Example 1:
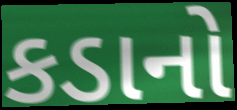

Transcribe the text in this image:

કડાનો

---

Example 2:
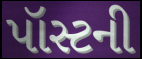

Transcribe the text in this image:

પૉસ્ટની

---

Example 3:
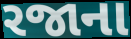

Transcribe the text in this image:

રજાના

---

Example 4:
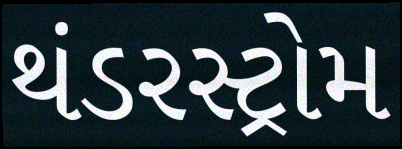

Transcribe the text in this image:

થંડરસ્ટ્રોમ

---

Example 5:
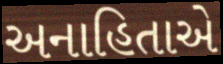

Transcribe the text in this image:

અનાહિતાએ